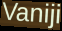
Vaniji